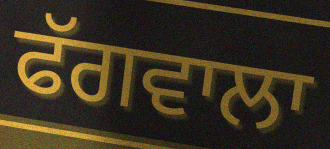
ਫੱਗਵਾਲਾ